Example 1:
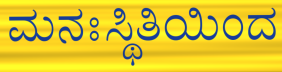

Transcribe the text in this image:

ಮನಃಸ್ಥಿತಿಯಿಂದ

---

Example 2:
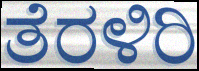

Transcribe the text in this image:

ತೆರಳಿರಿ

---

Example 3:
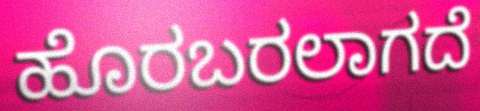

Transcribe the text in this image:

ಹೊರಬರಲಾಗದೆ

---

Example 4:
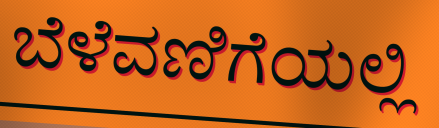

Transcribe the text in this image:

ಬೆಳೆವಣಿಗೆಯಲ್ಲಿ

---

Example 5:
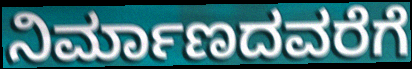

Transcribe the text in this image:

ನಿರ್ಮಾಣದವರೆಗೆ